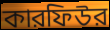
কারফিউর